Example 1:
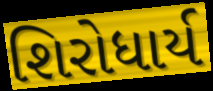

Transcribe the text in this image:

શિરોધાર્ય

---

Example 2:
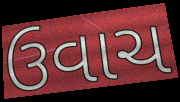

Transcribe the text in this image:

ઉવાચ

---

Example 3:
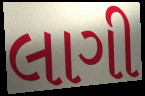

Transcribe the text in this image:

લાગી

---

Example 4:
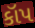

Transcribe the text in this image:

કૉપ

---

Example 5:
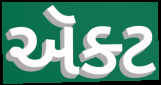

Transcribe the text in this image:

ઍૅક્ટ